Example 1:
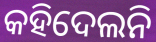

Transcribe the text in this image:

କହିଦେଲନି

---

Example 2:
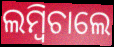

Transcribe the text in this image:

ଲମ୍ବିଚାଲେ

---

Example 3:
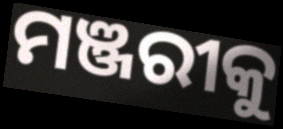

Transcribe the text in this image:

ମଞ୍ଜରୀକୁ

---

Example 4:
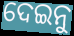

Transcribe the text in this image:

ଦେଇନୁ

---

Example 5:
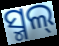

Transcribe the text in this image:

ସ୍ମଲ୍